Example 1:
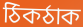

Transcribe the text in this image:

ঠিকঠাক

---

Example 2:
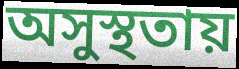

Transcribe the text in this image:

অসুস্থতায়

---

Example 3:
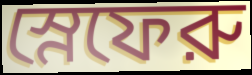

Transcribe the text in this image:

স্নেফেরু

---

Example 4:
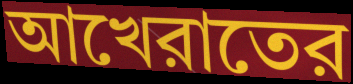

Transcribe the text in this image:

আখেরাতের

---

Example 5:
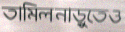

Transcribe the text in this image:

তামিলনাড়ুতেও